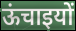
ऊंचाइयों